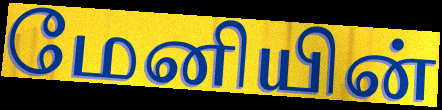
மேனியின்